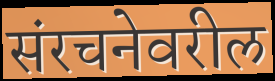
संरचनेवरील